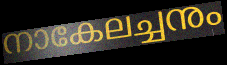
നാകേലച്ചനും